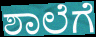
ಶಾಲೆಗೆ